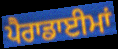
ਪੈਰਾਡਾਈਮਾਂ